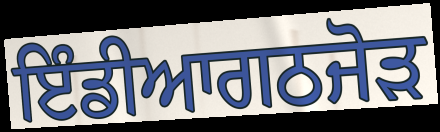
ਇੰਡੀਆਗਠਜੋੜ